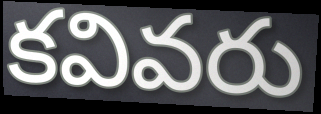
కవివరు